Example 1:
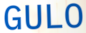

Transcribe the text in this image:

GULO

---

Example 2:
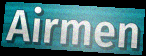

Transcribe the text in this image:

Airmen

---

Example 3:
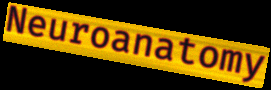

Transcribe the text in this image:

Neuroanatomy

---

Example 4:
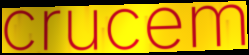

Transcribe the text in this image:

crucem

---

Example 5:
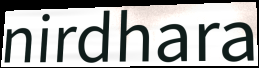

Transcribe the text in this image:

nirdhara